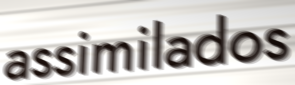
assimilados